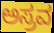
ಅಸ್ರವ